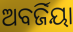
ଅବର୍ଜିୟା